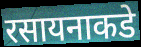
रसायनाकडे